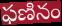
ఫణినం